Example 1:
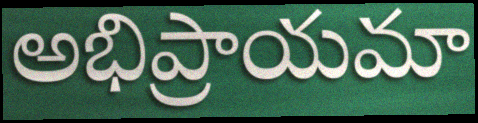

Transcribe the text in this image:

అభిప్రాయమా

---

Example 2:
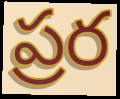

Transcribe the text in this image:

ప్రర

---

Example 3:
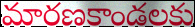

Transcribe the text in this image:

మారణకాండలకు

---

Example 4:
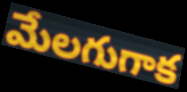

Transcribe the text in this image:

మేలగుగాక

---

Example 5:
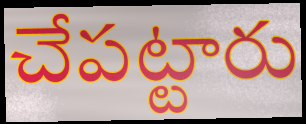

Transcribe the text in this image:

చేపట్టారు